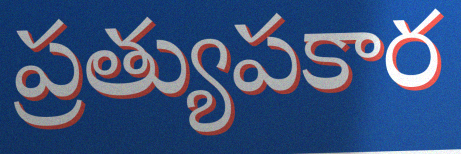
ప్రత్యుపకార